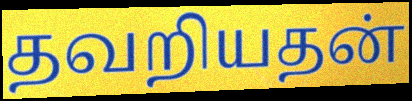
தவறியதன்